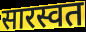
सारस्वत